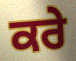
ਕਰੇ